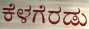
ಕೆಳಗೆರಡು